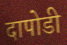
दापोडी